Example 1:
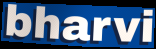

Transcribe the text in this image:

bharvi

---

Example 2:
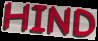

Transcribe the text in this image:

HIND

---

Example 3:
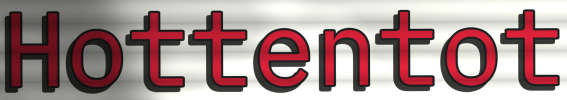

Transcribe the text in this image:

Hottentot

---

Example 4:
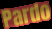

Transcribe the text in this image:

Pardo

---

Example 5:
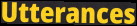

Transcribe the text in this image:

Utterances